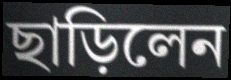
ছাড়িলেন